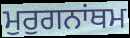
ਮੁਰੁਗਨਾਂਥਮ